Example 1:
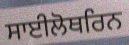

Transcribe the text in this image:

ਸਾਈਲੋਥਰਿਨ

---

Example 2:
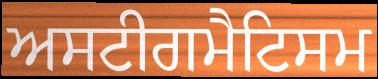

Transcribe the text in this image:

ਅਸਟੀਗਮੈਟਿਸਮ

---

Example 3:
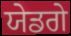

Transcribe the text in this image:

ਯੇਡਗੇ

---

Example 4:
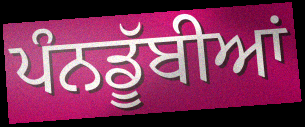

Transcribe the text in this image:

ਪੰਨਡੂੱਬੀਆਂ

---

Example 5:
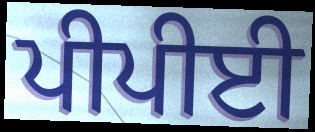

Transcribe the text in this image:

ਪੀਪੀਈ